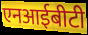
एनआईबीटी